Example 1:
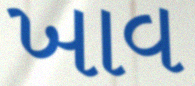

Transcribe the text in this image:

ખાવ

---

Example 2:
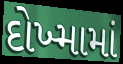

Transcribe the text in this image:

દોખ્મામાં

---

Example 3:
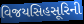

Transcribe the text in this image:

વિજયસિહસૂરિની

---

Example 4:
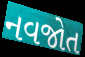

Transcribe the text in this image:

નવજોત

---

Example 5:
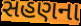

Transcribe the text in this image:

સહણના